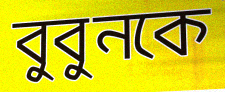
বুবুনকে